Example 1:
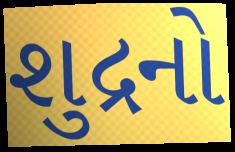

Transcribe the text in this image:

શુદ્રનો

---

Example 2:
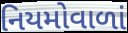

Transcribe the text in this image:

નિયમોવાળાં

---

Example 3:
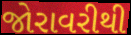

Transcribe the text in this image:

જોરાવરીથી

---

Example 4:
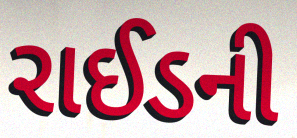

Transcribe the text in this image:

રાઈડની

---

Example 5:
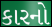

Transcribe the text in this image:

કારનો